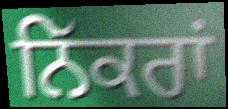
ਨਿੱਕਰਾਂ